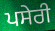
ਪਸੇਰੀ